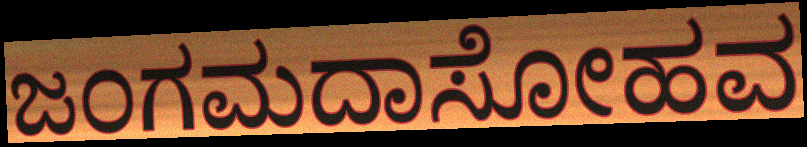
ಜಂಗಮದಾಸೋಹವ